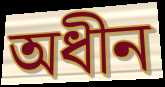
অধীন